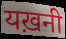
यख़नी